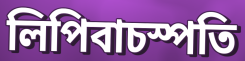
লিপিবাচস্পতি